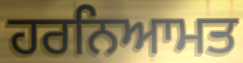
ਹਰਨਿਆਮਤ